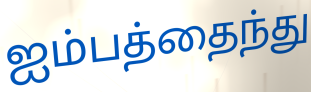
ஐம்பத்தைந்து